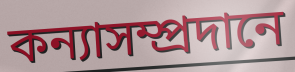
কন্যাসম্প্রদানে